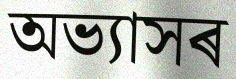
অভ্যাসৰ